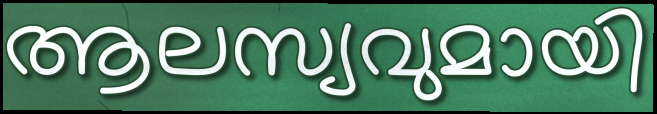
ആലസ്യവുമായി